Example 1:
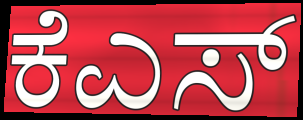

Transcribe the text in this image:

ಕೆಎಸ್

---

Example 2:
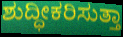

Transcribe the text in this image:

ಶುದ್ಧೀಕರಿಸುತ್ತಾ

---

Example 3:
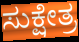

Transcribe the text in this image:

ಸುಕ್ಷೇತ್ರ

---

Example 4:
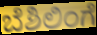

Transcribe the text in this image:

ಬೆಶಿಲಿಂಗೆ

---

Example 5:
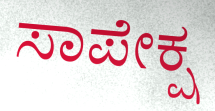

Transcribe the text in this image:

ಸಾಪೇಕ್ಷ